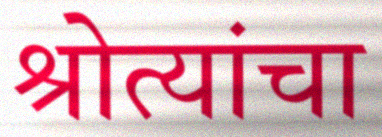
श्रोत्यांचा